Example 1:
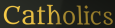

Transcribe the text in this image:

Catholics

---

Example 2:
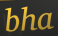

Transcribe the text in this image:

bha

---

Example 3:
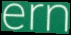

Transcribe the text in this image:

ern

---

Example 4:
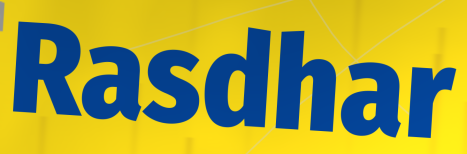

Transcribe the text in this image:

Rasdhar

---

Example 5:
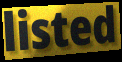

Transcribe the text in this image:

listed